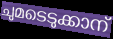
ചുമടെടുക്കാന്